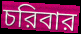
চরিবার